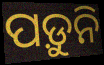
ପଡ଼ୁନି